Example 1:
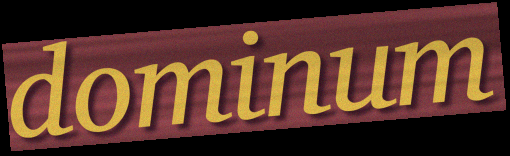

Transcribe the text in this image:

dominum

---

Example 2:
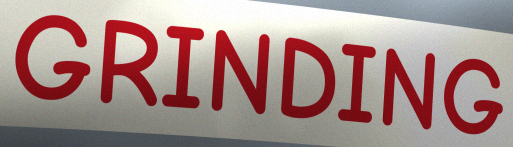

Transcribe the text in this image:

GRINDING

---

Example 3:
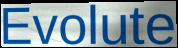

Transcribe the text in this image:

Evolute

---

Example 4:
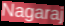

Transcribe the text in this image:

Nagaraj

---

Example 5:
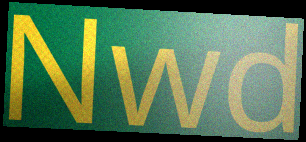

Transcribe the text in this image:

Nwd